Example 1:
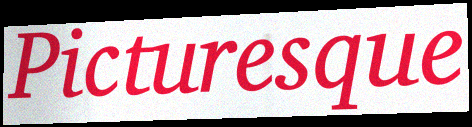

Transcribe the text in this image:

Picturesque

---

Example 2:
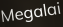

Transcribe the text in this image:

Megalai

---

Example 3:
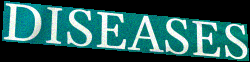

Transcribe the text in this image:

DISEASES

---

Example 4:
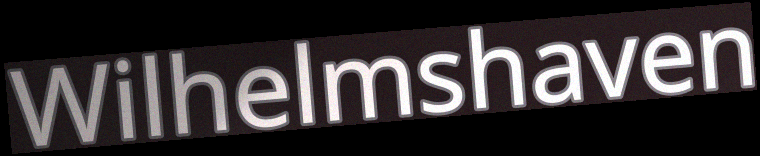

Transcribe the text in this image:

Wilhelmshaven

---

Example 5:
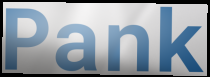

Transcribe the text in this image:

Pank